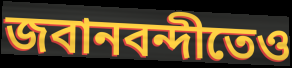
জবানবন্দীতেও